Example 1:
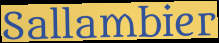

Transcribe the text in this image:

Sallambier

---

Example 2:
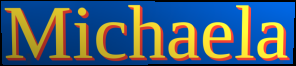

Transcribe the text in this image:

Michaela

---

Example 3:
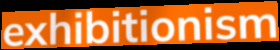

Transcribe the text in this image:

exhibitionism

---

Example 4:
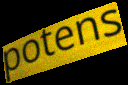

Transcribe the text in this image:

potens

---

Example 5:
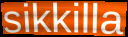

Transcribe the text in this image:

sikkilla